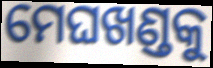
ମେଘଖଣ୍ଡକୁ